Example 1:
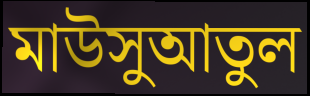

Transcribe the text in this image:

মাউসুআতুল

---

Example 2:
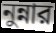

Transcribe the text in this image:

নুন্নার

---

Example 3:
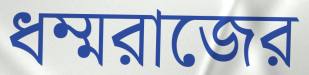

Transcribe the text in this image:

ধম্মরাজের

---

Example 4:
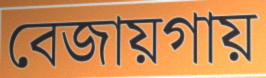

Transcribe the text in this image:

বেজায়গায়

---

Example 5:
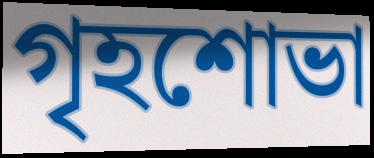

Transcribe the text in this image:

গৃহশোভা